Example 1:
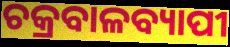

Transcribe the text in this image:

ଚକ୍ରବାଳବ୍ୟାପୀ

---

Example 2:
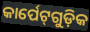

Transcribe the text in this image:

କାର୍ପେଟ୍‌ଗୁଡ଼ିକ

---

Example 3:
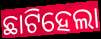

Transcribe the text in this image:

ଛାଟିହେଲା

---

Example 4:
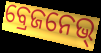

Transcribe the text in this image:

ବ୍ରେଜନେଭ୍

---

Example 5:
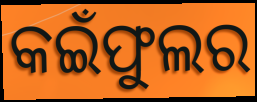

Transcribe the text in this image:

କଇଁଫୁଲର